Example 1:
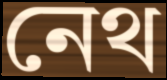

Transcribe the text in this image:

নেথ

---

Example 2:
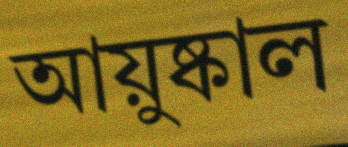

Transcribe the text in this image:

আয়ুষ্কাল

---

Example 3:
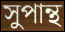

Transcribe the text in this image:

সুপান্থ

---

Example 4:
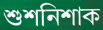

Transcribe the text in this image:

শুশনিশাক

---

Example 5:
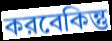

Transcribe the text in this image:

করবেকিন্তু